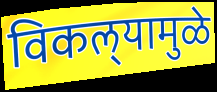
विकल्यामुळे